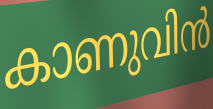
കാണുവിൻ